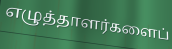
எழுத்தாளர்களைப்